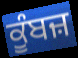
ਕੂੰਬਜ਼